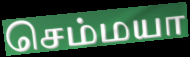
செம்மயா